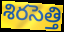
శిరసెత్తి